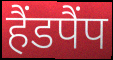
हैंडपैंप